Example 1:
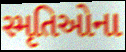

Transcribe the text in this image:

સ્મૃતિઓના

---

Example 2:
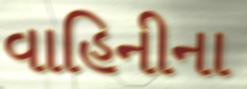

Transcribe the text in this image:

વાહિનીના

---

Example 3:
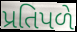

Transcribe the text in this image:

પ્રતિપળે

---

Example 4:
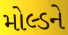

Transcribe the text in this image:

મોલ્ડને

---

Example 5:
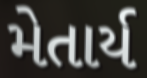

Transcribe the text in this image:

મેતાર્ય